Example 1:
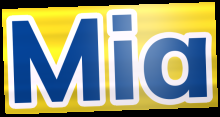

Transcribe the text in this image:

Mia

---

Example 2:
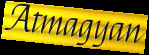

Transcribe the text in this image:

Atmagyan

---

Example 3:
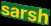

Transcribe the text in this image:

sarsh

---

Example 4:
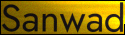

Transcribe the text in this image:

Sanwad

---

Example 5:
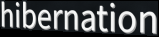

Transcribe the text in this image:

hibernation